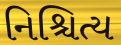
નિશ્ચિત્ય